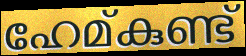
ഹേമ്കുണ്ട്